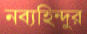
নব্যহিন্দুর